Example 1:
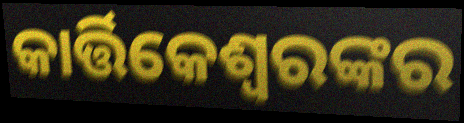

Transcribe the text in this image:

କାର୍ତ୍ତିକେଶ୍ୱରଙ୍କର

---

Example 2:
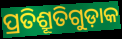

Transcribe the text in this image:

ପ୍ରତିଶ୍ରୂତିଗୁଡ଼ାକ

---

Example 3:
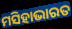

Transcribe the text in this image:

ମସିହାଭାରତ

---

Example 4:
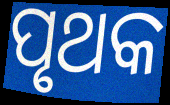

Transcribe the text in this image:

ପୃଥକ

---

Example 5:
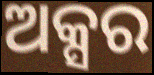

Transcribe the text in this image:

ଅକ୍ସର